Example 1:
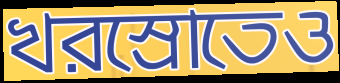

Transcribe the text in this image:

খরস্রোতেও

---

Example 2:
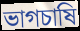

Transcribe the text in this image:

ভাগচাষি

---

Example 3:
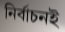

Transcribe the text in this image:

নির্বাচনই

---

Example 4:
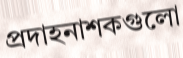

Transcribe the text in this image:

প্রদাহনাশকগুলো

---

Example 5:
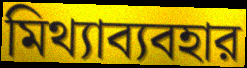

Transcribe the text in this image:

মিথ্যাব্যবহার